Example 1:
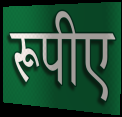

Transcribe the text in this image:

रूपीए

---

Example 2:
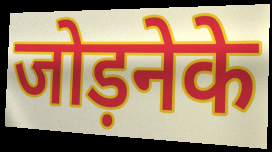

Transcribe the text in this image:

जोड़नेके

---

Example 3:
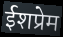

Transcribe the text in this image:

ईशप्रेम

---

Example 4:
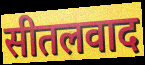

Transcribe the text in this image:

सीतलवाद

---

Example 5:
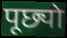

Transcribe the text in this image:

पूछ्यो